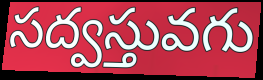
సద్వస్తువగు